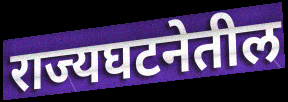
राज्यघटनेतील